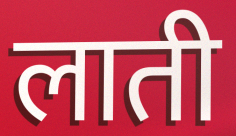
लाती